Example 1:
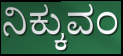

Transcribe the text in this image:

ನಿಕ್ಕುವಂ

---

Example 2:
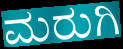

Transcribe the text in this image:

ಮರುಗಿ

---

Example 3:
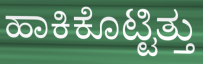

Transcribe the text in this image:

ಹಾಕಿಕೊಟ್ಟಿತ್ತು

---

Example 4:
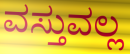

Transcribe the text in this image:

ವಸ್ತುವಲ್ಲ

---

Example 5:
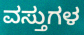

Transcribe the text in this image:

ವಸ್ತುಗಳ